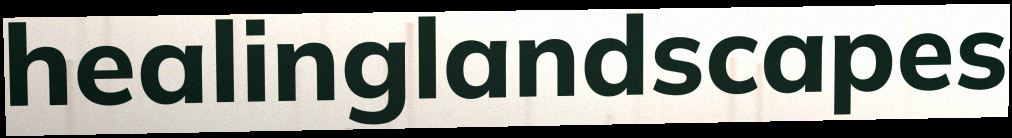
healinglandscapes